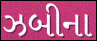
ઝબીના